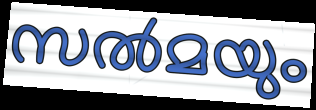
സൽമയും